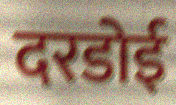
दरडोई